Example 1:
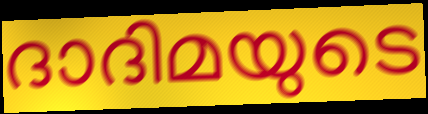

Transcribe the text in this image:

ദാദിമയുടെ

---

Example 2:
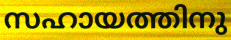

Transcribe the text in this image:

സഹായത്തിനു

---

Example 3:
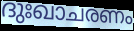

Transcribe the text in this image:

ദുഃഖാചരണം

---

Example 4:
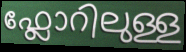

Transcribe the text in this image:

ഫ്ലോറിലുള്ള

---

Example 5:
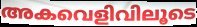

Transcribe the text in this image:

അകവെളിവിലൂടെ